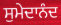
ਸੁਮੇਦਾਨੰਦ